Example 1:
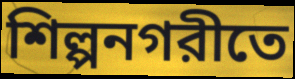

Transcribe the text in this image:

শিল্পনগরীতে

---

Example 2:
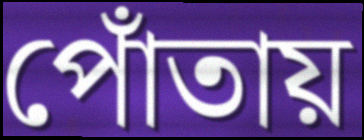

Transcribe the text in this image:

পোঁতায়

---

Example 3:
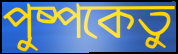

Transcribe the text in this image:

পুষ্পকেতু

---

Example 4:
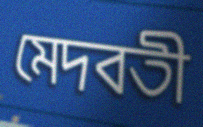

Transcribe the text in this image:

মেদবতী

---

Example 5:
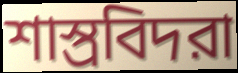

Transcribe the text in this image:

শাস্ত্রবিদরা